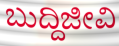
ಬುದ್ದಿಜೀವಿ